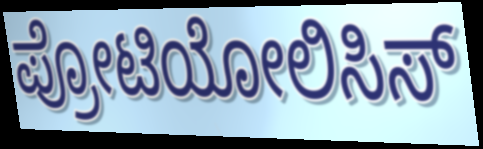
ಪ್ರೋಟಿಯೋಲಿಸಿಸ್